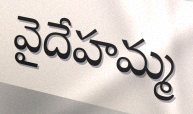
వైదేహమ్మ